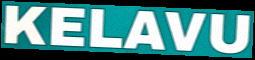
KELAVU